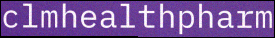
clmhealthpharm